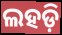
ଲହଡ଼ି